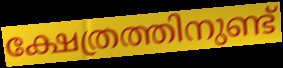
ക്ഷേത്രത്തിനുണ്ട്